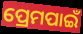
ପ୍ରେମପାଇଁ